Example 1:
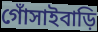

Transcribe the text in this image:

গোঁসাইবাড়ি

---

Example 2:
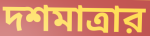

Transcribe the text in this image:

দশমাত্রার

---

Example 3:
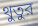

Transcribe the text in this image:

থুতুর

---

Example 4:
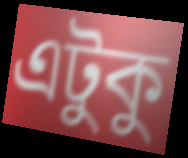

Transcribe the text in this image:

এটুকু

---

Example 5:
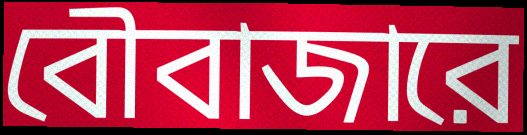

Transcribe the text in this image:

বৌবাজারে